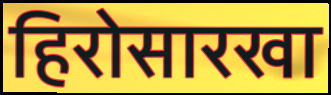
हिरोसारखा